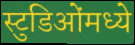
स्टुडिओंमध्ये